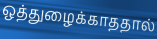
ஒத்துழைக்காததால்